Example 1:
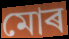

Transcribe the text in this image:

মোৰ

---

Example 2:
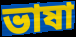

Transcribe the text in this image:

ভাষা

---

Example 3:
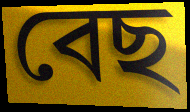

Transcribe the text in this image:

বেছ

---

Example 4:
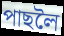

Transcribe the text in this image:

পাছলৈ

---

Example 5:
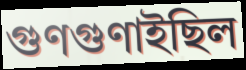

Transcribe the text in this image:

গুণগুণাইছিল